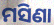
ମସିଣା